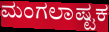
ಮಂಗಲಾಷ್ಟಕ